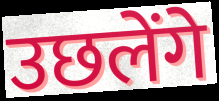
उछलेंगे